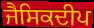
ਜੈਸਿਕਦੀਪ